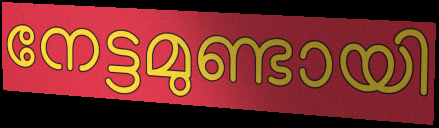
നേട്ടമുണ്ടായി